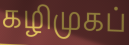
கழிமுகப்